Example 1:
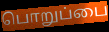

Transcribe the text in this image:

பொறுப்பை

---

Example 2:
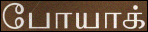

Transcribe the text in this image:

போயாக்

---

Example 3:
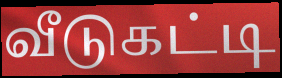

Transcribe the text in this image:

வீடுகட்டி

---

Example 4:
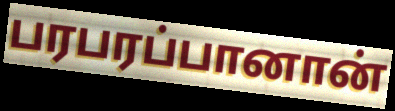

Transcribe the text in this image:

பரபரப்பானான்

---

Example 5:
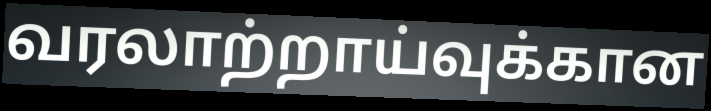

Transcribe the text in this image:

வரலாற்றாய்வுக்கான